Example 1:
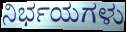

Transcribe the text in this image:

ನಿರ್ಭಯಗಳು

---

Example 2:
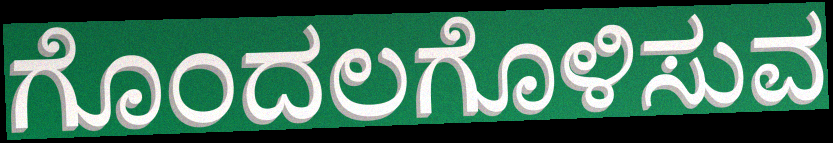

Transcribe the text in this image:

ಗೊಂದಲಗೊಳಿಸುವ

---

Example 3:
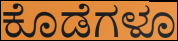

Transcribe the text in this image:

ಕೊಡೆಗಳೂ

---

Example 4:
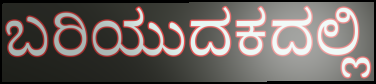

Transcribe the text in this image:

ಬರಿಯುದಕದಲ್ಲಿ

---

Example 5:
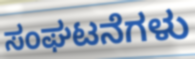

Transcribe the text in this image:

ಸಂಘಟನೆಗಳು